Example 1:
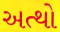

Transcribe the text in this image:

અત્થો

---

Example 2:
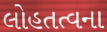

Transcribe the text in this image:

લોહતત્વના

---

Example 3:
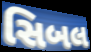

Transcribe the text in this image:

સિબલ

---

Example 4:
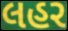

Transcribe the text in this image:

લહર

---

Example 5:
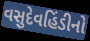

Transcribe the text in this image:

વસુદેવહિંડીનો